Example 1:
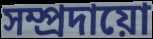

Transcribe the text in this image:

সম্প্ৰদায়ো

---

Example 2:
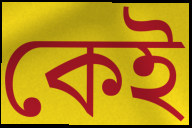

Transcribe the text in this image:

কেই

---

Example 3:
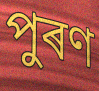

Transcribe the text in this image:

পুৰণ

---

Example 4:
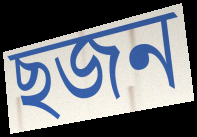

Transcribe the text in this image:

ছজন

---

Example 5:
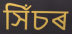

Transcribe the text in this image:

সিঁচৰ